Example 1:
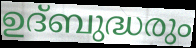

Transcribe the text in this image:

ഉദ്ബുദ്ധരും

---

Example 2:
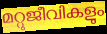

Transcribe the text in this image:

മറ്റുജീവികളും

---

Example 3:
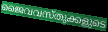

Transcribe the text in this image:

ജൈവവസ്തുക്കളുടെ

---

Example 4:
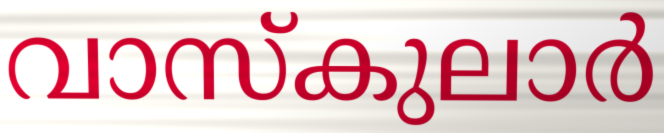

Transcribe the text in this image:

വാസ്കുലാർ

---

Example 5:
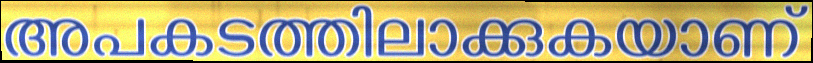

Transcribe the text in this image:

അപകടത്തിലാക്കുകയാണ്